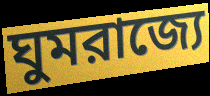
ঘুমরাজ্যে